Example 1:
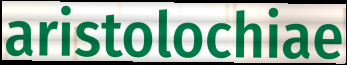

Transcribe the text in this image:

aristolochiae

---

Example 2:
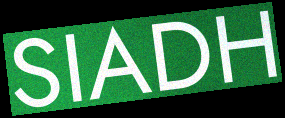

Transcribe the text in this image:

SIADH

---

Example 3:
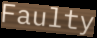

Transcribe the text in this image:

Faulty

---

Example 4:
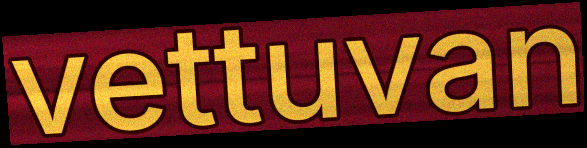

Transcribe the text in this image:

vettuvan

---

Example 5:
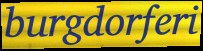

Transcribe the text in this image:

burgdorferi